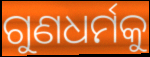
ଗୁଣଧର୍ମକୁ